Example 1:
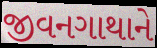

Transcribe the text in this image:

જીવનગાથાને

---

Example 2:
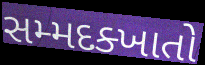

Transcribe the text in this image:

સમ્મદક્ખાતો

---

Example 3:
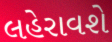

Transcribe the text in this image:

લહેરાવશે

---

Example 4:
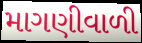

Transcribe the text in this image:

માગણીવાળી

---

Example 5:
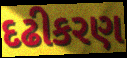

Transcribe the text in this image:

દઢીકરણ